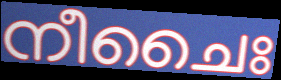
നീചൈഃ